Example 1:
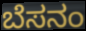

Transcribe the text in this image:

ಬೆಸನಂ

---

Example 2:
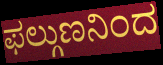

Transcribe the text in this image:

ಫಲ್ಗುಣನಿಂದ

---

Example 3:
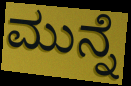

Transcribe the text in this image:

ಮುನ್ನೆ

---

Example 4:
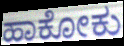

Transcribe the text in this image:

ಹಾಕೋಕು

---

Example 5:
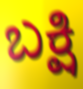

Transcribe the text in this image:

ಬಕ್ಷಿ